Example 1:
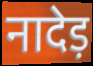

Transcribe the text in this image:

नादेड़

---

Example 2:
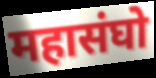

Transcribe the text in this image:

महासंघो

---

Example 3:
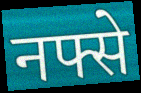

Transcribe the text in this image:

नफ्से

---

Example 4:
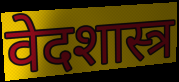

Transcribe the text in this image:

वेदशास्त्र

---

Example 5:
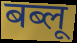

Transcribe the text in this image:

बब्लू